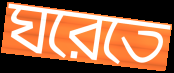
ঘরেতে